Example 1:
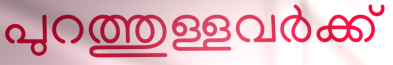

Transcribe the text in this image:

പുറത്തുള്ളവർക്ക്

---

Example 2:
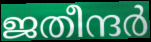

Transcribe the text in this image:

ജതീന്ദർ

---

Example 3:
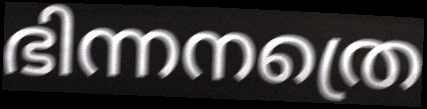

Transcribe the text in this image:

ഭിന്നനത്രെ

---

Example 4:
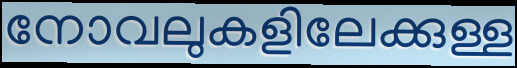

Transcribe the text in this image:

നോവലുകളിലേക്കുള്ള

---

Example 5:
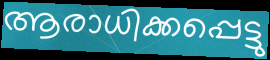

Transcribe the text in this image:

ആരാധിക്കപ്പെട്ടു